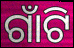
ଗାଁଟି